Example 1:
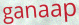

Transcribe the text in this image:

ganaap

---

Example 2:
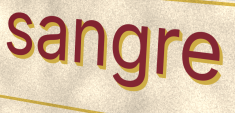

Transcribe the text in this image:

sangre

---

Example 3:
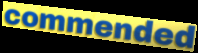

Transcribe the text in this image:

commended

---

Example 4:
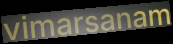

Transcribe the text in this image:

vimarsanam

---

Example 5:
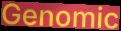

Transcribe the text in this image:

Genomic